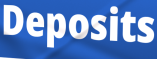
Deposits